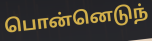
பொன்னெடுந்